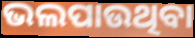
ଭଲପାଉଥିବା